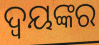
ଦ୍ବୟଙ୍କର